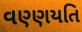
વણ્ણયતિ